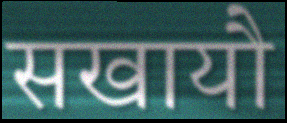
सखायौ